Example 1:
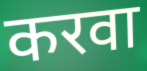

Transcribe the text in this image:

करवा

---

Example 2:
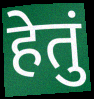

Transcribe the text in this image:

हेतुं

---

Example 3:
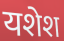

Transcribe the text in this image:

यशेश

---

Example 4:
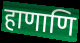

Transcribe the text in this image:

हाणाणि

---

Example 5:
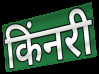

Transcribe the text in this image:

किंनरी